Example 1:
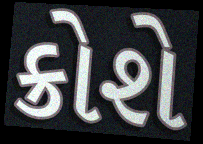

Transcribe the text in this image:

ક્રોશે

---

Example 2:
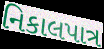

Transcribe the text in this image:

નિકાલપાત્ર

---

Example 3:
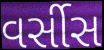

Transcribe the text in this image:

વર્સીસ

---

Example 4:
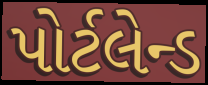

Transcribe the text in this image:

પોર્ટલેન્ડ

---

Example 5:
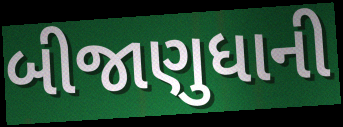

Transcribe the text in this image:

બીજાણુધાની